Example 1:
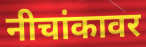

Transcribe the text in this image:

नीचांकावर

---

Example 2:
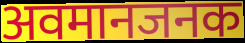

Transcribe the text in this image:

अवमानजनक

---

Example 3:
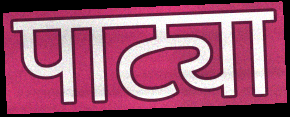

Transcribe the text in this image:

पाट्या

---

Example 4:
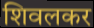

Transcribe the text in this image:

शिवलकर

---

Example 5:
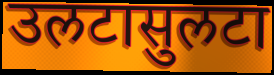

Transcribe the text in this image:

उलटासुलटा